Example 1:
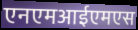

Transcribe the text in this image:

एनएमआईएमएस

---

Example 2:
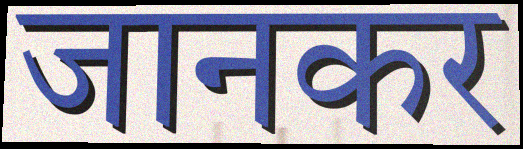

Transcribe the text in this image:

जानकर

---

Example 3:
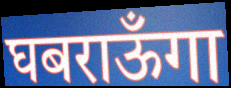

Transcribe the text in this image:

घबराऊँगा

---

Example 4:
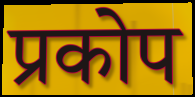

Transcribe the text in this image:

प्रकोप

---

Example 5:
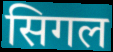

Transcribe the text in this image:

सिगल